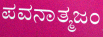
ಪವನಾತ್ಮಜಂ